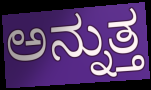
ಅನ್ನುತ್ತ